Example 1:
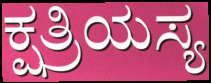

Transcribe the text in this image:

ಕ್ಷತ್ರಿಯಸ್ಯ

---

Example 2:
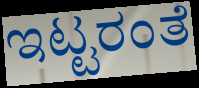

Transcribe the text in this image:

ಇಟ್ಟರಂತೆ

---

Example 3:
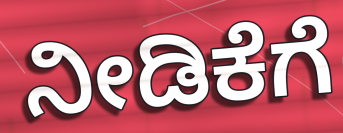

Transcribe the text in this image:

ನೀಡಿಕೆಗೆ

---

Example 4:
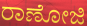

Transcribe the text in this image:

ರಾಣೋಜಿ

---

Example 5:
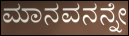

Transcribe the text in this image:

ಮಾನವನನ್ನೇ